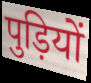
पुड़ियों